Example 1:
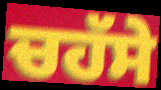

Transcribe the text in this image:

ਚਹੱਸੇ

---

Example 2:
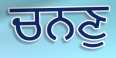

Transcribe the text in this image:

ਚਨਣੁ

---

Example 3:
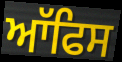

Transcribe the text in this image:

ਆੱਫਿਸ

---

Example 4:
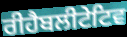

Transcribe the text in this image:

ਰੀਹੈਬਲੀਟੇਟਿਵ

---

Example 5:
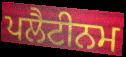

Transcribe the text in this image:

ਪਲੈਟੀਨਮ